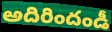
అదిరిందండీ